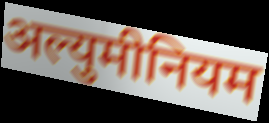
अल्युमीनियम